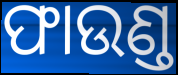
ଫାଉଣ୍ଡ